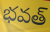
భవత్